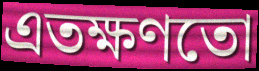
এতক্ষণতো